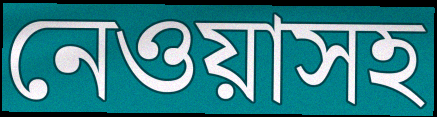
নেওয়াসহ